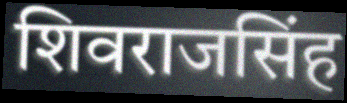
शिवराजसिंह